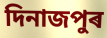
দিনাজপুৰ